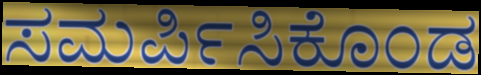
ಸಮರ್ಪಿಸಿಕೊಂಡ